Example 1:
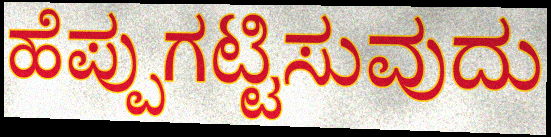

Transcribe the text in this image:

ಹೆಪ್ಪುಗಟ್ಟಿಸುವುದು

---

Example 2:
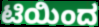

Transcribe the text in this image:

ಟಿಯಿಂದ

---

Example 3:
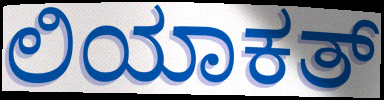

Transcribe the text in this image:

ಲಿಯಾಕತ್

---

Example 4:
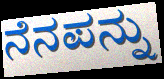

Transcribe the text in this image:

ನೆನಪನ್ನು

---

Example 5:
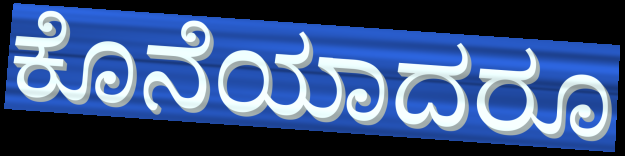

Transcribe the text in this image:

ಕೊನೆಯಾದರೂ